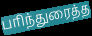
பரிந்துரைத்த